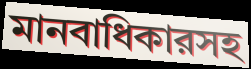
মানবাধিকারসহ